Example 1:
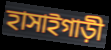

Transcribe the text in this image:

হাসাইগাড়ী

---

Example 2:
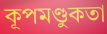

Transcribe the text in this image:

কূপমণ্ডুকতা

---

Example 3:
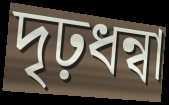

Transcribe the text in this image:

দৃঢ়ধন্বা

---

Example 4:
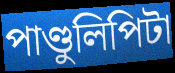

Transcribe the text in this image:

পাণ্ডুলিপিটা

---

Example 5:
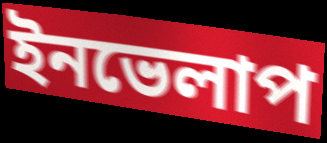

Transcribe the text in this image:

ইনভেলাপ